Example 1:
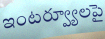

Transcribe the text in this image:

ఇంటర్వ్యూలపై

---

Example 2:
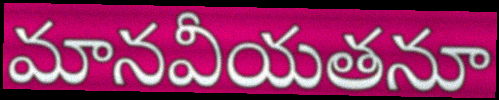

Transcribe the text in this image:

మానవీయతనూ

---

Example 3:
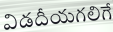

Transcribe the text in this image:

విడదీయగలిగే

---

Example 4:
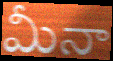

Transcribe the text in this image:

మీనా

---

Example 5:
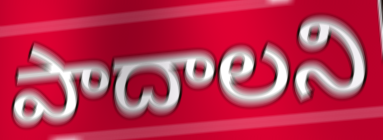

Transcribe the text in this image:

పాదాలని